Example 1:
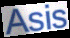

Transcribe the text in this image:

Asis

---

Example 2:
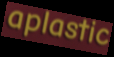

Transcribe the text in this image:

aplastic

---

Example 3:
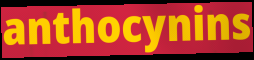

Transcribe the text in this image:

anthocynins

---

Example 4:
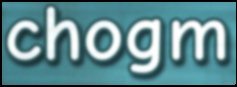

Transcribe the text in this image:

chogm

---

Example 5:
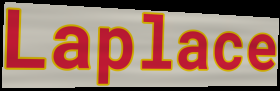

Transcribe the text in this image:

Laplace